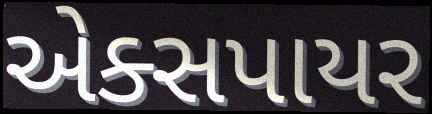
એક્સપાયર